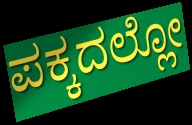
ಪಕ್ಕದಲ್ಲೋ